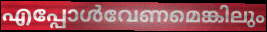
എപ്പോൾവേണമെങ്കിലും